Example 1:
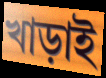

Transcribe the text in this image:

খাড়াই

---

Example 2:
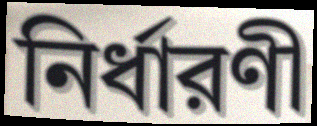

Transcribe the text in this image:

নির্ধারণী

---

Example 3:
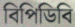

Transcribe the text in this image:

বিপিডিবি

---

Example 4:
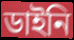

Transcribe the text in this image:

ডাইনি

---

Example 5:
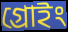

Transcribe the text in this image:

গ্রোইং